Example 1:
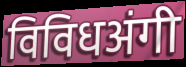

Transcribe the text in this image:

विविधअंगी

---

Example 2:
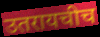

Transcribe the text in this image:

उतरायचीच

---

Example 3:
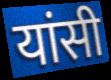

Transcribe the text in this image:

यांसी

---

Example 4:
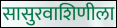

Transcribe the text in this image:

सासुरवाशिणीला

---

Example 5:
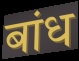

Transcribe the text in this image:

बांध